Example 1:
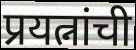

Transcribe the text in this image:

प्रयत्नांची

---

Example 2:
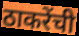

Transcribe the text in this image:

ठाकरेंची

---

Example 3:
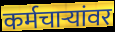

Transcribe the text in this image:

कर्मचाऱ्यांवर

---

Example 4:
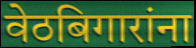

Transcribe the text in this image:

वेठबिगारांना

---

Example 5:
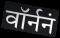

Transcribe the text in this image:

वॉर्ननं